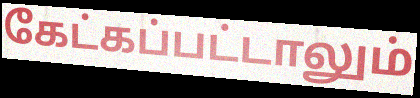
கேட்கப்பட்டாலும்